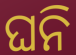
ଘନି